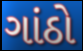
ગાંઠો